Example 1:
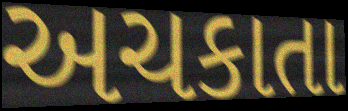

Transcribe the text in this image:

અચકાતા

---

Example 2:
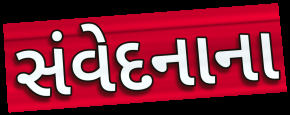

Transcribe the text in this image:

સંવેદનાના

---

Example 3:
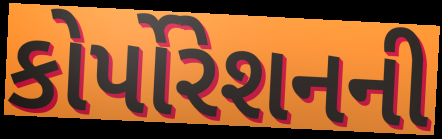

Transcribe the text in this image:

કોર્પોરેશનની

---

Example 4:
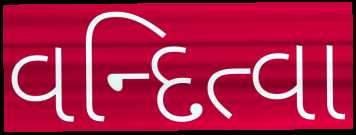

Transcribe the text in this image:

વન્દિત્વા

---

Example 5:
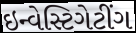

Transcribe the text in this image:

ઇન્વેસ્ટિગેટીંગ